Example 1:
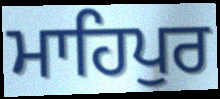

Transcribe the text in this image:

ਮਾਹਿਪੁਰ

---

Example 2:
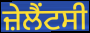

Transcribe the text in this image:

ਜ਼ੇਲੈਂਟਸੀ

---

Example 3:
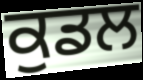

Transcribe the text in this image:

ਕੁਡਲ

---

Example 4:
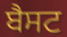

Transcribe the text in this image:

ਬੈਸਟ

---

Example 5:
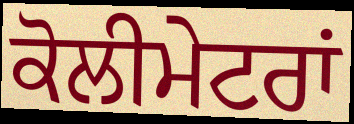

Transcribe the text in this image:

ਕੋਲੀਮੇਟਰਾਂ